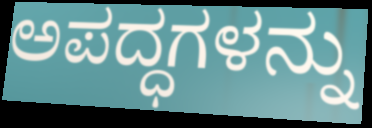
ಅಪದ್ಧಗಳನ್ನು